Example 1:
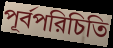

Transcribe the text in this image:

পূর্বপরিচিতি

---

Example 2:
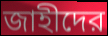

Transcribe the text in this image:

জাহীদের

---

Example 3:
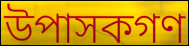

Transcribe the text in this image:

উপাসকগণ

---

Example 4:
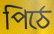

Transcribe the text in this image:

পিঠে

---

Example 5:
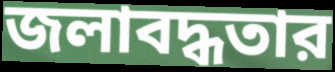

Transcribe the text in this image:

জলাবদ্ধতার